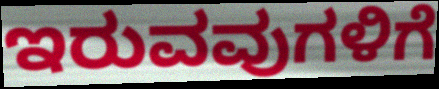
ಇರುವವುಗಳಿಗೆ